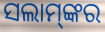
ସଲାମ୍‌ଙ୍କର